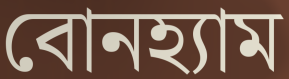
বোনহ্যাম